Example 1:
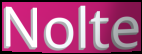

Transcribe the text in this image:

Nolte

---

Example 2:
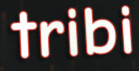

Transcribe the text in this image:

tribi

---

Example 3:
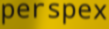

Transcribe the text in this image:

perspex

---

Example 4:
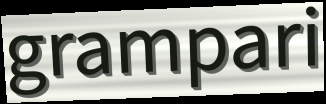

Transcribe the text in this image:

grampari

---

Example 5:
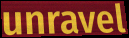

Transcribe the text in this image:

unravel